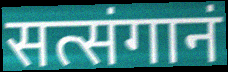
सत्संगानं